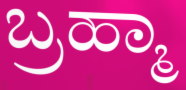
ಬ್ರಹ್ಮಾ